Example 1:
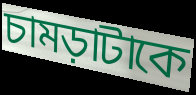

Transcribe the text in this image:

চামড়াটাকে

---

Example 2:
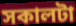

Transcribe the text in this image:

সকালটা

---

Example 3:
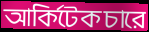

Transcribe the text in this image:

আর্কিটেকচারে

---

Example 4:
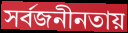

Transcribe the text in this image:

সর্বজনীনতায়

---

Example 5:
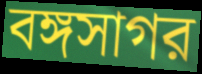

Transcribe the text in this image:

বঙ্গসাগর